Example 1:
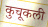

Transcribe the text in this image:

कुचूकली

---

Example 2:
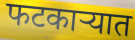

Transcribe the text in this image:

फटकाऱ्यात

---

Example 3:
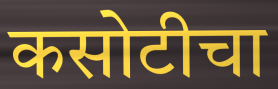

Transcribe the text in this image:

कसोटीचा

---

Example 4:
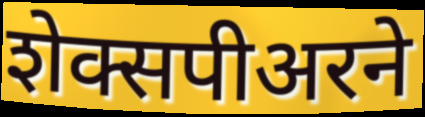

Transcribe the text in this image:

शेक्सपीअरने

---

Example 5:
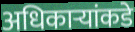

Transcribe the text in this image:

अधिकार्‍यांकडे